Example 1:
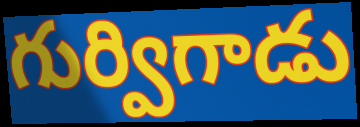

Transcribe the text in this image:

గుర్విగాడు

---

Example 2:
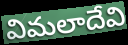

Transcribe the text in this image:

విమలాదేవి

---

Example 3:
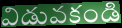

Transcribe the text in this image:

విడువకండి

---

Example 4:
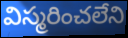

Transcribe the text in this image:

విస్మరించలేని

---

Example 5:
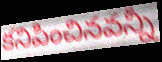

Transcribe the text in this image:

కనిపించినవన్నీ